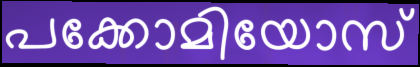
പക്കോമിയോസ്